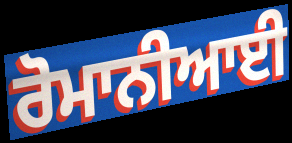
ਰੋਮਾਨੀਆਈ